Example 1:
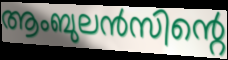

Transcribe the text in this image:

ആംബുലൻസിന്റെ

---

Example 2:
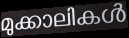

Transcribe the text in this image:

മുക്കാലികൾ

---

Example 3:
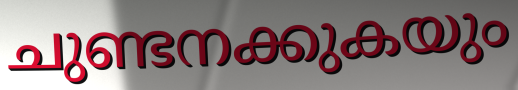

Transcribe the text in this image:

ചുണ്ടനക്കുകയും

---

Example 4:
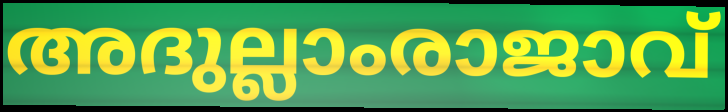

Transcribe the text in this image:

അദുല്ലാംരാജാവ്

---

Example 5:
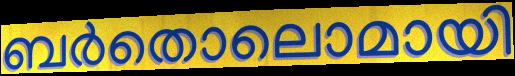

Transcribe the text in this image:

ബർതൊലൊമായി